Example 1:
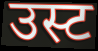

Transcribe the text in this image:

उस्ट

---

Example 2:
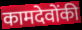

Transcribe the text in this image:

कामदेवोंकी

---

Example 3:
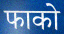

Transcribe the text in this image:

फाको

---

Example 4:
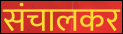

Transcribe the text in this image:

संचालकर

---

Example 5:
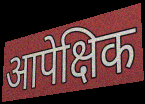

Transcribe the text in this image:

आपेक्षिक